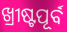
ଖ୍ରୀଷ୍ଟପୂର୍ବ